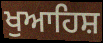
ਖੁਆਹਿਸ਼